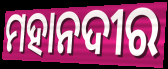
ମହାନଦୀର